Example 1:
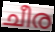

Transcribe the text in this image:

ചീര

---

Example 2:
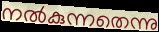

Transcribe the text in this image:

നൽകുന്നതെന്നു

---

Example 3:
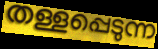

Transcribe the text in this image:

തള്ളപ്പെടുന്ന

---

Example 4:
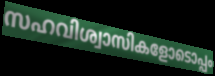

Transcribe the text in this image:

സഹവിശ്വാസികളോടൊപ്പം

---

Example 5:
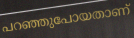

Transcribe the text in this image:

പറഞ്ഞുപോയതാണ്